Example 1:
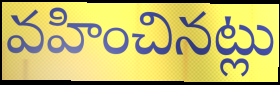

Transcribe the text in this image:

వహించినట్లు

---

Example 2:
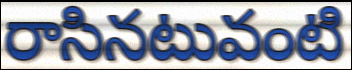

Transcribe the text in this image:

రాసినటువంటి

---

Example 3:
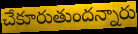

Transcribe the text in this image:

చేకూరుతుందన్నారు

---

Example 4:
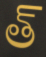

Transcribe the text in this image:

త్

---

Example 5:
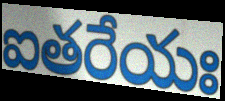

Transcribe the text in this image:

ఐతరేయః